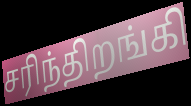
சரிந்திறங்கி